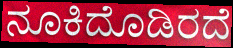
ನೂಕಿದೊಡಿರದೆ